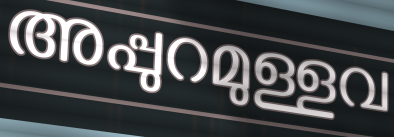
അപ്പുറമുള്ളവ